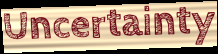
Uncertainty